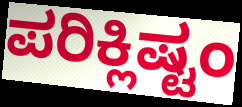
ಪರಿಕ್ಲಿಷ್ಟಂ